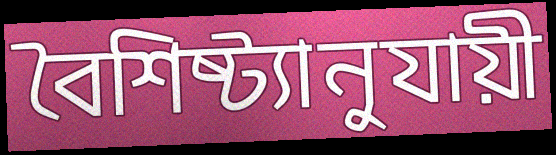
বৈশিষ্ট্যানুযায়ী